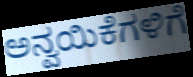
ಅನ್ವಯಿಕೆಗಳಿಗೆ